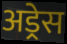
अड्रेस